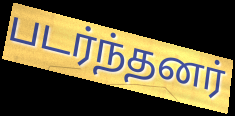
படர்ந்தனர்